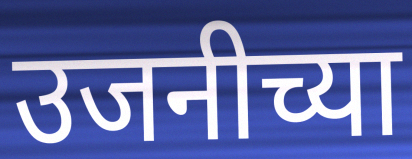
उजनीच्या